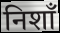
निशाँ